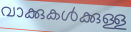
വാക്കുകൾക്കുള്ള